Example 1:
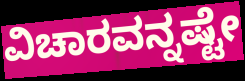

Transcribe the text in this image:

ವಿಚಾರವನ್ನಷ್ಟೇ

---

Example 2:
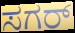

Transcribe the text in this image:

ಸಗರ್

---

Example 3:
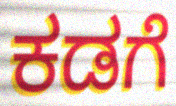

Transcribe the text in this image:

ಕಡಗೆ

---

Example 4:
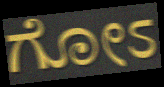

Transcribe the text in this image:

ಗೋಽ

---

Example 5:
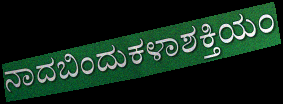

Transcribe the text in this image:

ನಾದಬಿಂದುಕಳಾಶಕ್ತಿಯಂ